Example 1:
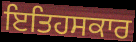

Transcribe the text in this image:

ਇਤਿਹਸਕਾਰ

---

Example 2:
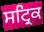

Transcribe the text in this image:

ਸਟ੍ਰਿਕ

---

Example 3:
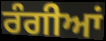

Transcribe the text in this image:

ਰੰਗੀਆਂ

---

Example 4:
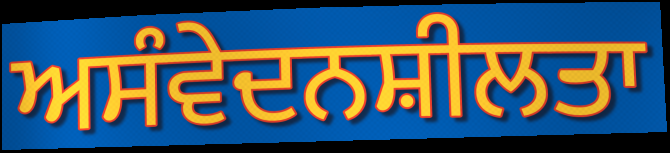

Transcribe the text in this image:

ਅਸੰਵੇਦਨਸ਼ੀਲਤਾ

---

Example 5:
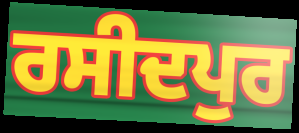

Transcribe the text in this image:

ਰਸੀਦਪੁਰ